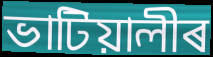
ভাটিয়ালীৰ